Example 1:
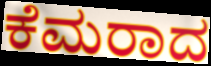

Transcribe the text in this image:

ಕೆಮರಾದ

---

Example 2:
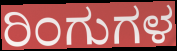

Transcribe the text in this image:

ರಿಂಗುಗಳ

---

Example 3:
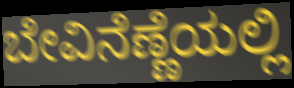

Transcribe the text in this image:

ಬೇವಿನೆಣ್ಣೆಯಲ್ಲಿ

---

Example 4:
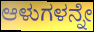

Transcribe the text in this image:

ಆಳುಗಳನ್ನೇ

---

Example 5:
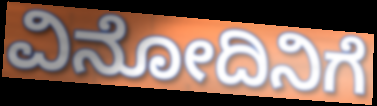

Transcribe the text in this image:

ವಿನೋದಿನಿಗೆ